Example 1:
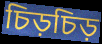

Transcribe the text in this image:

চিড়চিড়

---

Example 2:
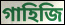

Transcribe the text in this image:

গাহিজি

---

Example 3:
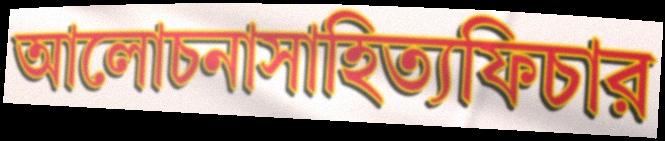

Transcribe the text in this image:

আলোচনাসাহিত্যফিচার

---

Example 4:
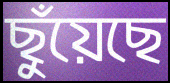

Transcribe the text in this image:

ছুঁয়েছে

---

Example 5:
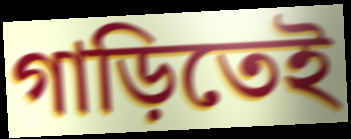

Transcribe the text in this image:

গাড়িতেই